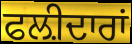
ਫਲ਼ੀਦਾਰਾਂ